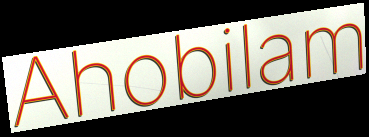
Ahobilam